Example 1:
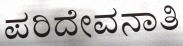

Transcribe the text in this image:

ಪರಿದೇವನಾತಿ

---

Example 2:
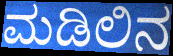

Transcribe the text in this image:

ಮಡಿಲಿನ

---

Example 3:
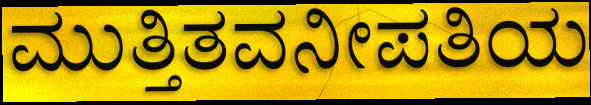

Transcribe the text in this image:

ಮುತ್ತಿತವನೀಪತಿಯ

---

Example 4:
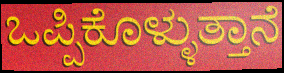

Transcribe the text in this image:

ಒಪ್ಪಿಕೊಳ್ಳುತ್ತಾನೆ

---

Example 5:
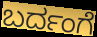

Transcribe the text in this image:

ಬರ್ದಂಗೆ